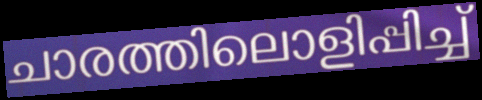
ചാരത്തിലൊളിപ്പിച്ച്